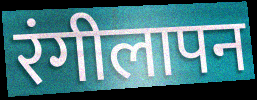
रंगीलापन